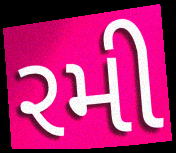
રમી